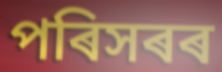
পৰিসৰৰ